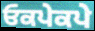
ਓਕਪੇਕਪੇ